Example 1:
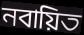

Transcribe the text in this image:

নবায়িত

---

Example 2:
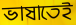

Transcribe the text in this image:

ভাষাতেই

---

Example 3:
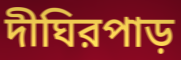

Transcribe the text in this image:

দীঘিরপাড়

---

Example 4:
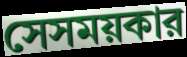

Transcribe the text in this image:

সেসময়কার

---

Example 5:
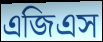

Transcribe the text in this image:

এজিএস